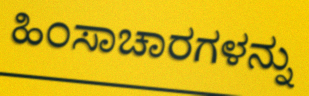
ಹಿಂಸಾಚಾರಗಳನ್ನು